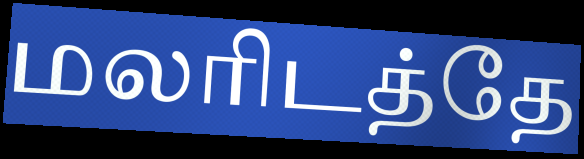
மலரிடத்தே